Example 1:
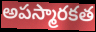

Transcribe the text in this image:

అపస్మారకత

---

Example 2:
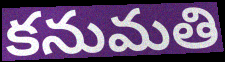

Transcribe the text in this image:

కనుమతి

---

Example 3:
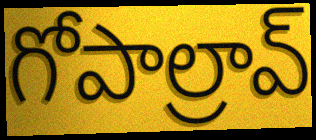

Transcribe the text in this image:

గోపాల్రావ్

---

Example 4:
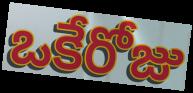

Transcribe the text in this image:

ఒకేరోజు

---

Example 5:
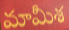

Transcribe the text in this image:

మామీశ